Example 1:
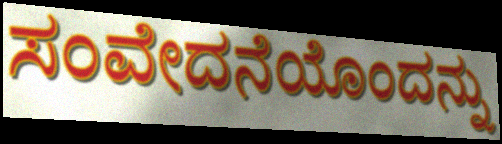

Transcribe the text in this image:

ಸಂವೇದನೆಯೊಂದನ್ನು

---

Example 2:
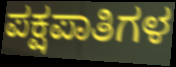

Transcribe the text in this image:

ಪಕ್ಷಪಾತಿಗಳ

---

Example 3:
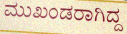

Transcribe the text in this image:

ಮುಖಂಡರಾಗಿದ್ದ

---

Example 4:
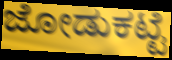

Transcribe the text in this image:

ಜೋಡುಕಟ್ಟೆ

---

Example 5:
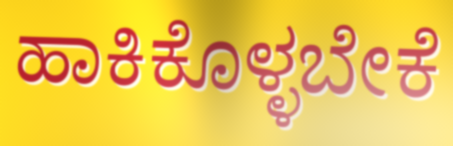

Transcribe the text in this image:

ಹಾಕಿಕೊಳ್ಳಬೇಕೆ